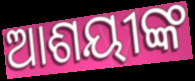
ଆଶୟୀଙ୍କ